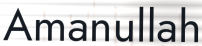
Amanullah